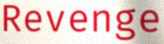
Revenge